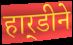
हार्डीने